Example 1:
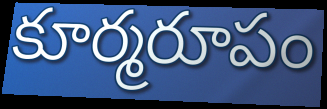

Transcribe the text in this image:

కూర్మరూపం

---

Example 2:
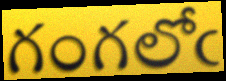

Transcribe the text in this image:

గంగలోఁ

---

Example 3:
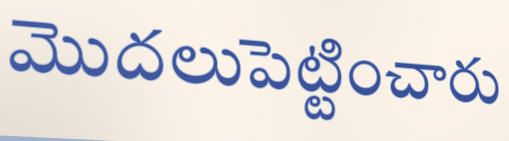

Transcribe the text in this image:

మొదలుపెట్టించారు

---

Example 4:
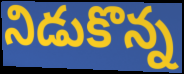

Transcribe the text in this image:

నిడుకొన్న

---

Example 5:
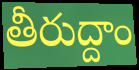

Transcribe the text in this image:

తీరుద్దాం